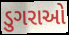
ડુગરાઓ